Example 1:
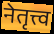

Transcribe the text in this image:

नेतृत्त्व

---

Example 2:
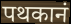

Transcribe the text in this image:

पथकानं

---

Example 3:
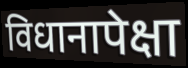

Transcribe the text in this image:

विधानापेक्षा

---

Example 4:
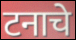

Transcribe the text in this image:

टनाचे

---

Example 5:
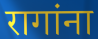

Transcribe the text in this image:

रागांना